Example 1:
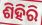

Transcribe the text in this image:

ଶିହିରି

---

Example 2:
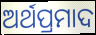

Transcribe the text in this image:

ଅର୍ଥପ୍ରମାଦ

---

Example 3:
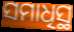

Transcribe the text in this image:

ସମାଧିସ୍ଥ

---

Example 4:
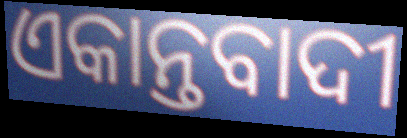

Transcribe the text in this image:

ଏକାନ୍ତବାଦୀ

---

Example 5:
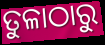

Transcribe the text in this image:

ତୁଳାଠାରୁ